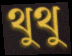
থুথু